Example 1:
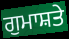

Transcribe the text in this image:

ਗੁਮਾਸ਼ਤੇ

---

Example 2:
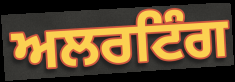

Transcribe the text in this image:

ਅਲਰਟਿੰਗ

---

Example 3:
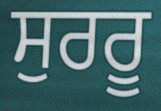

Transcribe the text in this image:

ਸੁਰਰੂ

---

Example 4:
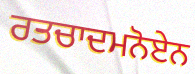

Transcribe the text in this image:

ਰਤਚਾਦਮਨੋਏਨ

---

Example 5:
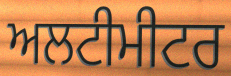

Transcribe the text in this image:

ਅਲਟੀਮੀਟਰ